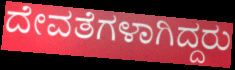
ದೇವತೆಗಳಾಗಿದ್ದರು